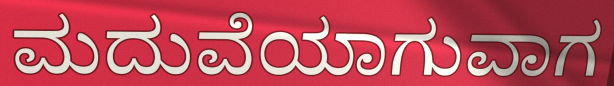
ಮದುವೆಯಾಗುವಾಗ